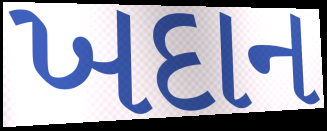
ખદાન